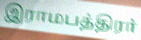
இராமபத்திரர்